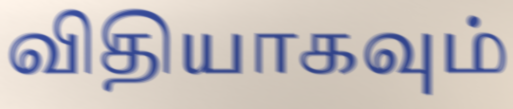
விதியாகவும்